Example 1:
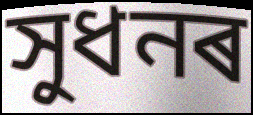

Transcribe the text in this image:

সুধনৰ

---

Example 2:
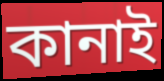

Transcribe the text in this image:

কানাই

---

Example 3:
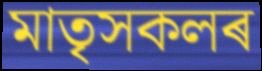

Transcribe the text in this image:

মাতৃসকলৰ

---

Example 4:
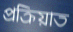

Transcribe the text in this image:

প্ৰক্ৰিয়াত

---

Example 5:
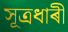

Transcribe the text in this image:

সূত্ৰধাৰী